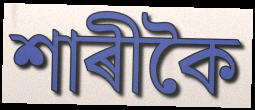
শাৰীকৈ